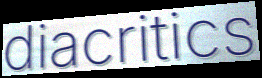
diacritics